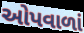
ઓપવાળાં